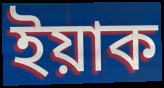
ইয়াক